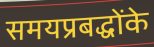
समयप्रबद्धोंके